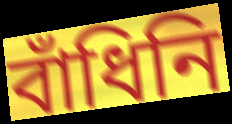
বাঁধিনি